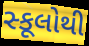
સ્કૂલોથી